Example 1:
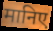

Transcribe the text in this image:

मानिए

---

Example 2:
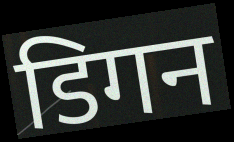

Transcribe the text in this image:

डिगन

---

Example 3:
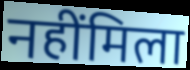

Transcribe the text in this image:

नहींमिला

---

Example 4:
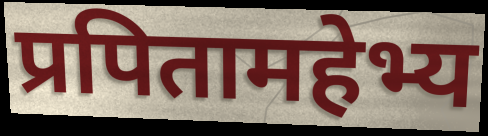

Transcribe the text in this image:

प्रपितामहेभ्य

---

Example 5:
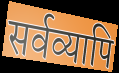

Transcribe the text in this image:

सर्वव्यापि